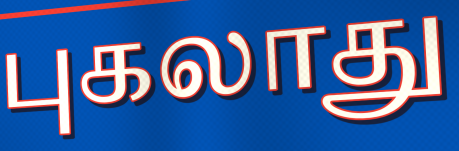
புகலாது